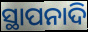
ସ୍ଥାପନାଦି